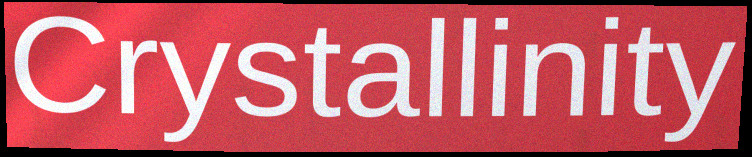
Crystallinity